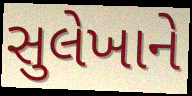
સુલેખાને